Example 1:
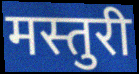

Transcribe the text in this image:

मस्तुरी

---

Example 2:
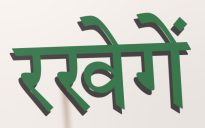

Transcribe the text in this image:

रखेगें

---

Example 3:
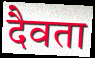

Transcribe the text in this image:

दैवता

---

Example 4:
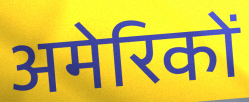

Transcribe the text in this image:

अमेरिकों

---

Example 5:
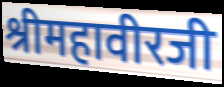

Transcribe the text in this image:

श्रीमहावीरजी